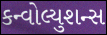
કન્વોલ્યુશન્સ